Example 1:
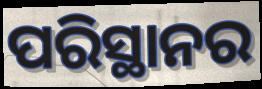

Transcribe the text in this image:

ପରିସ୍ଥାନର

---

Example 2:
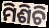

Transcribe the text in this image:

ମିଶିଚି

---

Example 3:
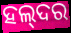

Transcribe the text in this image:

ହଲ୍‌ଦର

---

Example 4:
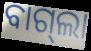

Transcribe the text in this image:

ବାଗ୍‌ଲା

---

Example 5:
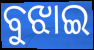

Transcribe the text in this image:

ବୁଝାଇ